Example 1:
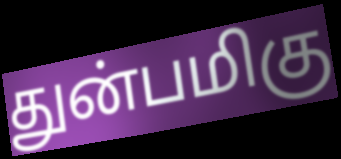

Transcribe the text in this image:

துன்பமிகு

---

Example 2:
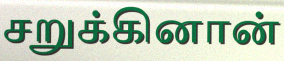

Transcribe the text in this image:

சறுக்கினான்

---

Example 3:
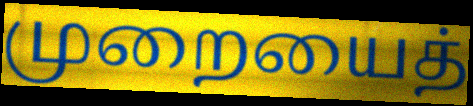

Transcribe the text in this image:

முறையைத்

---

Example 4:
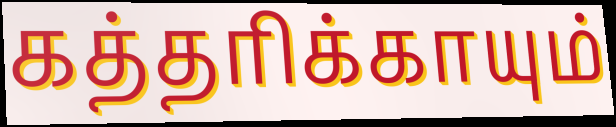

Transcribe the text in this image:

கத்தரிக்காயும்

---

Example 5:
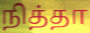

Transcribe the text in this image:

நித்தா